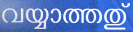
വയ്യാത്തതു്